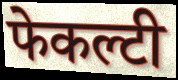
फेकल्टी